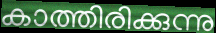
കാത്തിരിക്കുന്നു